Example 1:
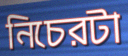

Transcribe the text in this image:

নিচেরটা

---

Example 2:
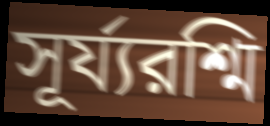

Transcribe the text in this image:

সূর্য্যরশ্মি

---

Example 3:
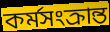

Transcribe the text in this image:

কর্মসংক্রান্ত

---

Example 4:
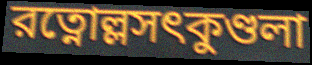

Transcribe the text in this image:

রত্নোল্লসৎকুণ্ডলা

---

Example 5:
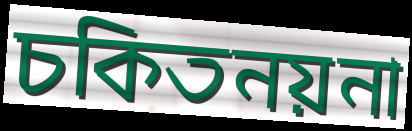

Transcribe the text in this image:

চকিতনয়না